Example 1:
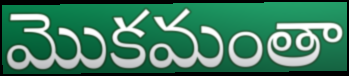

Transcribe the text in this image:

మొకమంతా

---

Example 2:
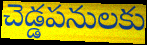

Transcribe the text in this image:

చెడ్డపనులకు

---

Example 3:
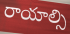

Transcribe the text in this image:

రాయాల్సి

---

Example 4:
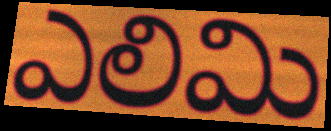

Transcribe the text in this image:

ఎలిమి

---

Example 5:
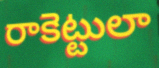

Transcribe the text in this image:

రాకెట్టులా